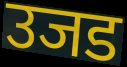
उजड